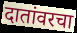
दातांवरचा